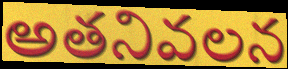
అతనివలన